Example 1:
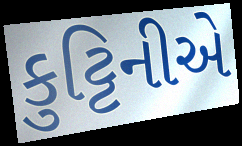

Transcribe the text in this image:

કુટ્ટિનીએ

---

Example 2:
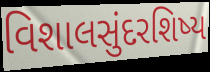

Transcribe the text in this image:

વિશાલસુંદરશિષ્ય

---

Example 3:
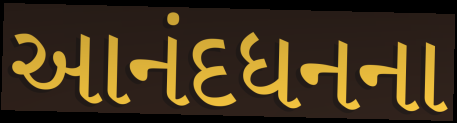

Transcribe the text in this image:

આનંદધનના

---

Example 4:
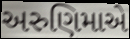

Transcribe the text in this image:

અરુણિમાએ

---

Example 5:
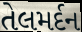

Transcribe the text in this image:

તેલમર્દન